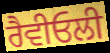
ਰੈਵੀਓਲੀ